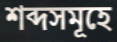
শব্দসমূহে